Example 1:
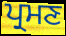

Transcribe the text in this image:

ਪ੍ਰਮਣ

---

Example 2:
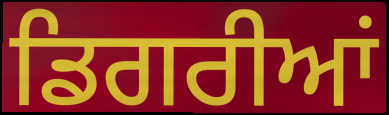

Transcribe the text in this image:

ਡਿਗਰੀਆਂ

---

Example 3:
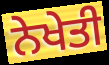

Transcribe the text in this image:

ਨੇਖੇਤੀ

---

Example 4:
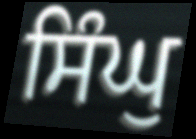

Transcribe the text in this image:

ਸਿੰਘੁ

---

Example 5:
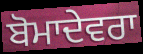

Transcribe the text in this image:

ਬੋਮਾਦੇਵਰਾ